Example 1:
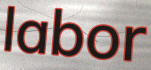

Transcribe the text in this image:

labor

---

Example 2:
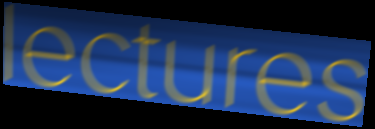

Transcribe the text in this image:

lectures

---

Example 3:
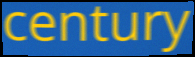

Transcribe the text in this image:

century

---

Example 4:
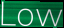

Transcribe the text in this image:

Low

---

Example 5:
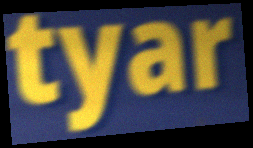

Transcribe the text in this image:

tyar